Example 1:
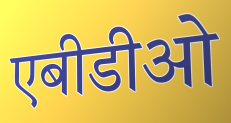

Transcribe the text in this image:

एबीडीओ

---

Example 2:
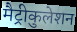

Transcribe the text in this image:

मैट्रीकुलेशन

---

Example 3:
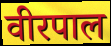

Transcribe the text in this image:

वीरपाल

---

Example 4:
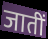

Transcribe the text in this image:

जातीं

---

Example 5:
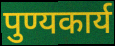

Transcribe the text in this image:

पुण्यकार्य